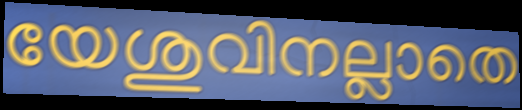
യേശുവിനല്ലാതെ